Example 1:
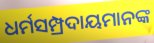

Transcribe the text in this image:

ଧର୍ମସମ୍ପ୍ରଦାୟମାନଙ୍କ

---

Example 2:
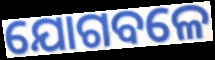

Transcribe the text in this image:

ଯୋଗବଳେ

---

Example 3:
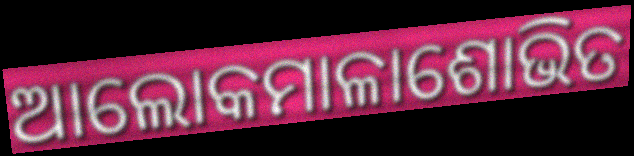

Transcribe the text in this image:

ଆଲୋକମାଳାଶୋଭିତ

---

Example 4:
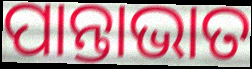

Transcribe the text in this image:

ପାନ୍ତାଭାତ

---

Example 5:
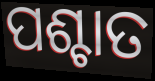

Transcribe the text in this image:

ପଶ୍ଚାତ